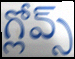
గ్లోవ్స్